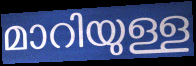
മാറിയുള്ള